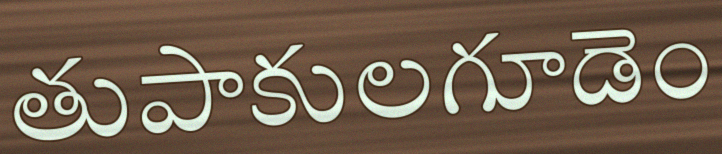
తుపాకులగూడెం